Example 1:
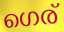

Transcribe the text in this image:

ഗെര്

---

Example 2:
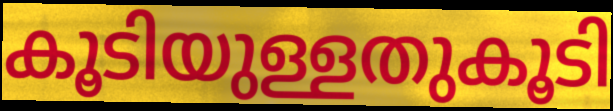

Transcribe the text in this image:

കൂടിയുള്ളതുകൂടി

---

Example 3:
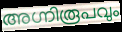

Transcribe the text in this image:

അഗ്നിരൂപവും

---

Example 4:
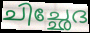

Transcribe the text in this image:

ചിച്ഛേദ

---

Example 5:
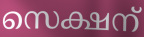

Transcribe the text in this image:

സെക്ഷന്